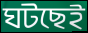
ঘটছেই